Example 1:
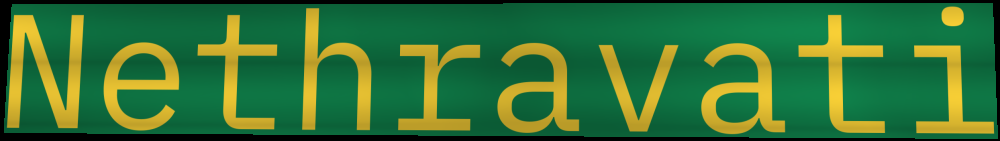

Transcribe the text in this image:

Nethravati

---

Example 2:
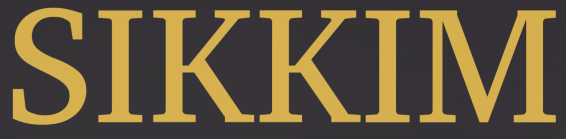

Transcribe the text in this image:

SIKKIM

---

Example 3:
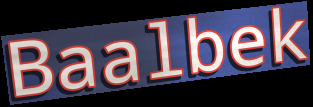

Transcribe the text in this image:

Baalbek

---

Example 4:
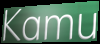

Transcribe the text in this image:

Kamu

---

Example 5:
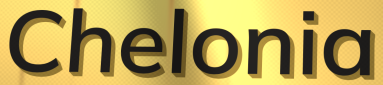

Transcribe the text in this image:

Chelonia